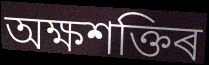
অক্ষশক্তিৰ